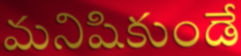
మనిషికుండే